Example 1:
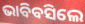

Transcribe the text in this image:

ଭାବିବସିଲେ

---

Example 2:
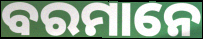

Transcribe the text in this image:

ବରମାନେ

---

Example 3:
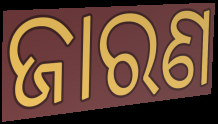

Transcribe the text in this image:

ଜାରଣ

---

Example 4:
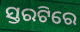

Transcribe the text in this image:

ସ୍ତରଟିରେ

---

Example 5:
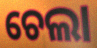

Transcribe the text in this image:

ଚେଲା